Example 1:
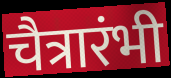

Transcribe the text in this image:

चैत्रारंभी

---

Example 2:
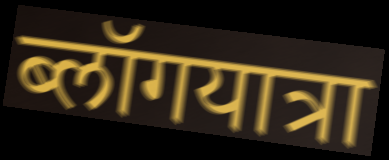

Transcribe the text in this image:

ब्लॉगयात्रा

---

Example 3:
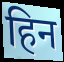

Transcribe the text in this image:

हिन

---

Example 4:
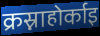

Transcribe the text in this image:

क्रस्नाहोर्काइ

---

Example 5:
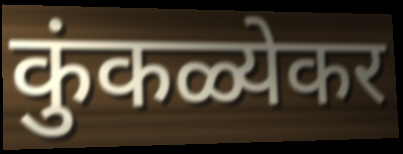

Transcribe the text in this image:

कुंकळ्येकर